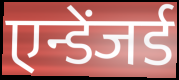
एन्डेंजर्ड